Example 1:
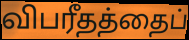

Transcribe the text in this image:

விபரீதத்தைப்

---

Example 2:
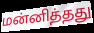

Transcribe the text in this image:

மன்னித்தது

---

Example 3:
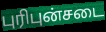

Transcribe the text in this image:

புரிபுன்சடை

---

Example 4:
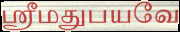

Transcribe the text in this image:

ஸ்ரீமதுபயவே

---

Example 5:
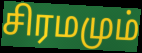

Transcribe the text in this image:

சிரமமும்